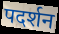
पदर्शन